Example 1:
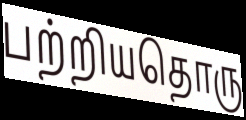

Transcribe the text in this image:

பற்றியதொரு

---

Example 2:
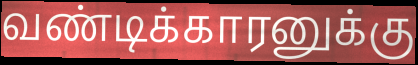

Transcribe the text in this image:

வண்டிக்காரனுக்கு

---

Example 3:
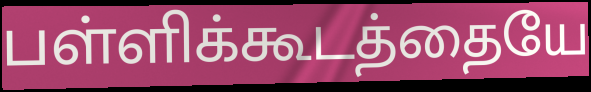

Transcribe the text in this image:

பள்ளிக்கூடத்தையே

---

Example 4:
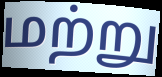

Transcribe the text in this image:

மற்று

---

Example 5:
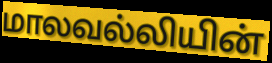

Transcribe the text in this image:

மாலவல்லியின்